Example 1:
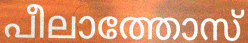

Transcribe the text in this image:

പീലാത്തോസ്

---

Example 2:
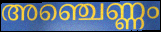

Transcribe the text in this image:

അഞ്ചെണ്ണം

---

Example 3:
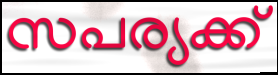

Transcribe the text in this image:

സപര്യക്ക്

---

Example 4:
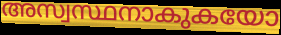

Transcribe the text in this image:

അസ്വസ്ഥനാകുകയോ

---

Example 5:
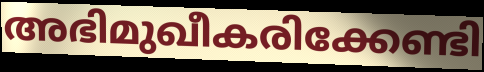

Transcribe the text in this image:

അഭിമുഖീകരിക്കേണ്ടി